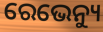
ରେଭେନ୍ୟୁ